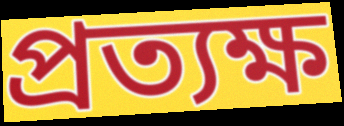
প্রত্যক্ষ